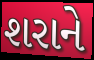
શરાને